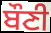
ਬੌਣੀ